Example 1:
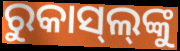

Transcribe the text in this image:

ରୁକାସ୍‍ଲ୍‌ଙ୍କୁ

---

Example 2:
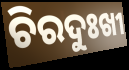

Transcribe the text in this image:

ଚିରଦୁଃଖୀ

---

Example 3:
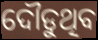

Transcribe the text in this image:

ଦୌଡୁଥିବ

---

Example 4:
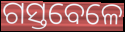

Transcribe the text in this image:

ଗସ୍ତବେଳେ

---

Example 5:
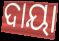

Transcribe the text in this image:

ଦାୟା